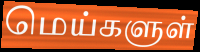
மெய்களுள்